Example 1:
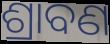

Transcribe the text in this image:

ଶ୍ରାବଣ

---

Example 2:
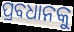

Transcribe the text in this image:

ପ୍ରବଧାନକୁ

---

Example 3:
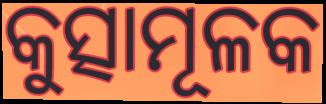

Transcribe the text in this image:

କୁତ୍ସାମୂଳକ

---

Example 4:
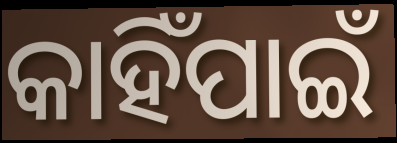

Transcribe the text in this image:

କାହିଁପାଇଁ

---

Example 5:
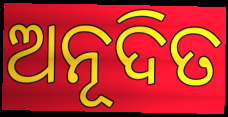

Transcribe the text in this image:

ଅନୂଦିତ